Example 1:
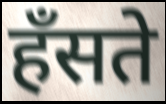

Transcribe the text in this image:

हँसते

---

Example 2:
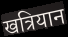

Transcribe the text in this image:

खत्रियान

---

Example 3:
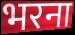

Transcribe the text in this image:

भरना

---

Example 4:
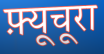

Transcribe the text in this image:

फ़्यूचूरा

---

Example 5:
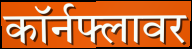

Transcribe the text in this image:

कॉर्नफ्लावर